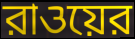
রাওয়ের